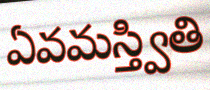
ఏవమస్త్వితి